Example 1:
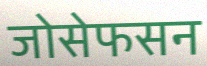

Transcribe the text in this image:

जोसेफसन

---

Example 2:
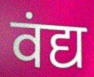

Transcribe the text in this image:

वंद्य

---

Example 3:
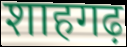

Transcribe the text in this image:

शाहगढ़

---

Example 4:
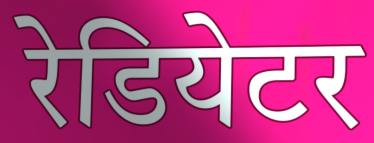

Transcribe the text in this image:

रेडियेटर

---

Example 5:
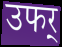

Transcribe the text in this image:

उफर्